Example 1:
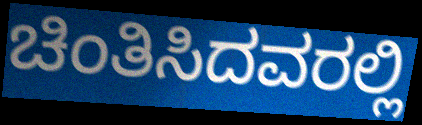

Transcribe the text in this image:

ಚಿಂತಿಸಿದವರಲ್ಲಿ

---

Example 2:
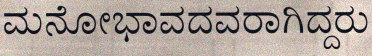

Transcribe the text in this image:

ಮನೋಭಾವದವರಾಗಿದ್ದರು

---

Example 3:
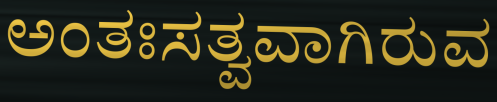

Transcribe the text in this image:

ಅಂತಃಸತ್ವವಾಗಿರುವ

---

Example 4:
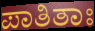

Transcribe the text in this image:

ಪಾತಿತಾಃ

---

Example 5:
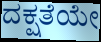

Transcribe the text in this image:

ದಕ್ಷತೆಯೇ